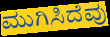
ಮುಗಿಸಿದೆವು